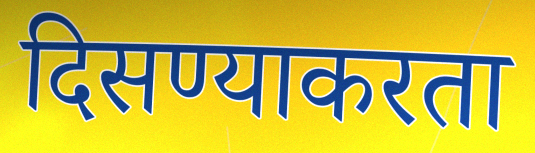
दिसण्याकरता